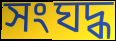
সংঘদ্ধ